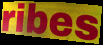
ribes